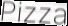
Pizza